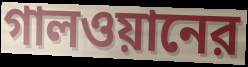
গালওয়ানের